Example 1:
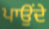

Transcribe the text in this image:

ਪਾਉਂਦੇ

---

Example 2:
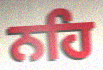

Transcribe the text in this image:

ਨਹਿ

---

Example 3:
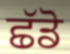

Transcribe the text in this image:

ਛੱਡੋ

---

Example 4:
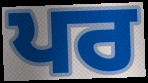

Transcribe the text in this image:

ਪਰ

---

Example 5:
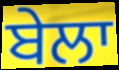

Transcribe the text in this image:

ਬੇਲਾ